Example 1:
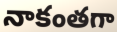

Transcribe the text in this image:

నాకంతగా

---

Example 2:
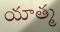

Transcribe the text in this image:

యాత్మ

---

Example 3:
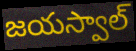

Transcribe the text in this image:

జయస్వాల్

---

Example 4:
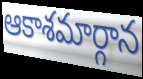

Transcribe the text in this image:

ఆకాశమార్గాన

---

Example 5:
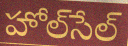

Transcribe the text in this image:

హోల్‌సేల్